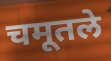
चमूतले